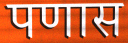
पणास